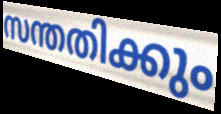
സന്തതിക്കും